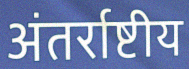
अंतर्राष्टीय